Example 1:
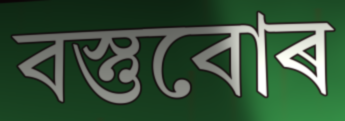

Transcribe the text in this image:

বস্তুবোৰ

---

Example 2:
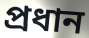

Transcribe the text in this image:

প্ৰধান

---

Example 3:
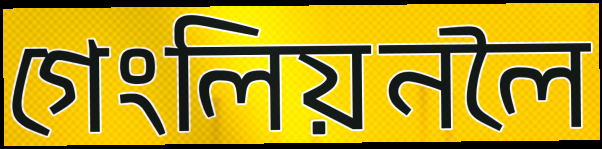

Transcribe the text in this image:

গেংলিয়নলৈ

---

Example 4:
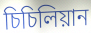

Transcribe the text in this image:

চিচিলিয়ান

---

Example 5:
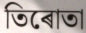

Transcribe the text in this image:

তিৰোতা